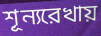
শূন্যরেখায়